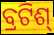
ବ୍ରଟିଶ୍